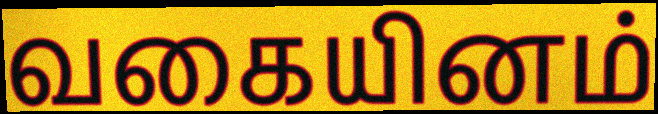
வகையினம்